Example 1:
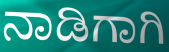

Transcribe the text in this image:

ನಾಡಿಗಾಗಿ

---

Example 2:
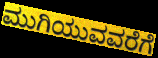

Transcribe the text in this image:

ಮುಗಿಯುವವರೆಗೆ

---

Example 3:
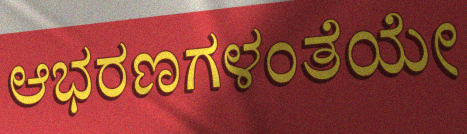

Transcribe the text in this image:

ಆಭರಣಗಳಂತೆಯೇ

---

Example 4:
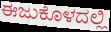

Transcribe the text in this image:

ಈಜುಕೊಳದಲ್ಲಿ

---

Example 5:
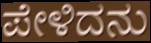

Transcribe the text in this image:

ಪೇಳಿದನು